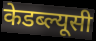
केडब्ल्यूसी